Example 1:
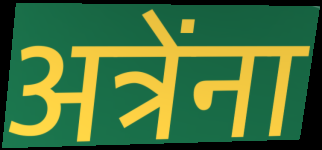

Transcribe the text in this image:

अत्रेंना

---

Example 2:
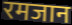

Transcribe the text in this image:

रमजान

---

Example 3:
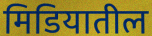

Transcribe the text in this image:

मिडियातील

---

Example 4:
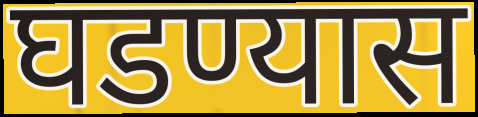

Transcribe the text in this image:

घडण्यास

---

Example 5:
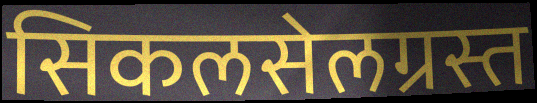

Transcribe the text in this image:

सिकलसेलग्रस्त